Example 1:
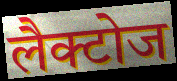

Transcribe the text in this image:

लैक्‍टोज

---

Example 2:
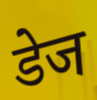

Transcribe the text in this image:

डेज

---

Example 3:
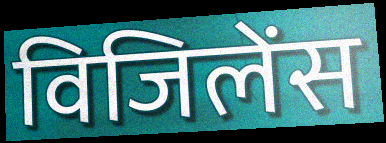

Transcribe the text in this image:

विजिलेंस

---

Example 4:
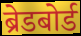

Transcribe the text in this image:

ब्रेडबोर्ड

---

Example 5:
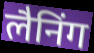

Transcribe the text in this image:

लैनिंग